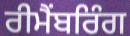
ਰੀਮੈਂਬਰਿੰਗ